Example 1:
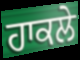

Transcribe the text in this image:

ਹਾਕਲੇ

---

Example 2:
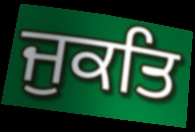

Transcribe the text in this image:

ਜੁਕਤਿ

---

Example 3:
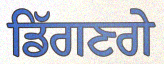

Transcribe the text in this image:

ਡਿੱਗਣਗੇ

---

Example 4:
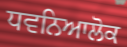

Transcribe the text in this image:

ਧਵਨਿਆਲੋਕ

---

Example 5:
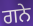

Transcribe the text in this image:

ਗਨੇ